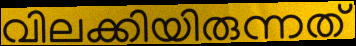
വിലക്കിയിരുന്നത്